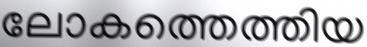
ലോകത്തെത്തിയ